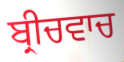
ਬ੍ਰੀਚਵਾਚ